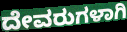
ದೇವರುಗಳಾಗಿ